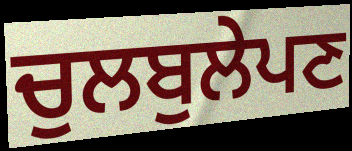
ਚੁਲਬੁਲੇਪਣ